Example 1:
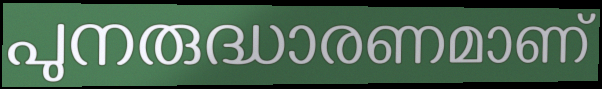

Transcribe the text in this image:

പുനരുദ്ധാരണമാണ്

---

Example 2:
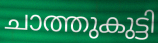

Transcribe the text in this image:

ചാത്തുകുട്ടി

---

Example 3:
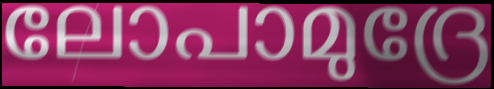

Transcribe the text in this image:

ലോപാമുദ്രേ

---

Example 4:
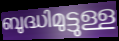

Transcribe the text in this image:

ബുദ്ധിമുട്ടുള്ള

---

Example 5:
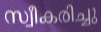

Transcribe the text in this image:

സ്വീകരിച്ചു